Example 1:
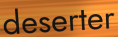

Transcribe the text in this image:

deserter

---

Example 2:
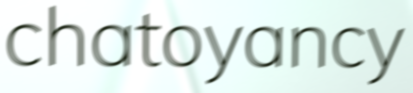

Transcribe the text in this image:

chatoyancy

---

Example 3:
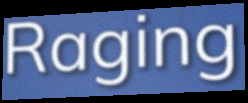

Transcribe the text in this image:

Raging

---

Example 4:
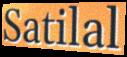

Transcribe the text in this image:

Satilal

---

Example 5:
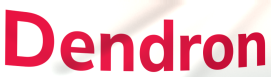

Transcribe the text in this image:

Dendron